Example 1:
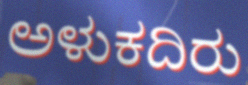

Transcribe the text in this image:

ಅಳುಕದಿರು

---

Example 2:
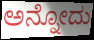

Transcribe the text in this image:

ಅನ್ನೋದು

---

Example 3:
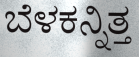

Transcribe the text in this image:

ಬೆಳಕನ್ನಿತ್ತ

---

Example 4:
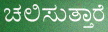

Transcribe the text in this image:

ಚಲಿಸುತ್ತಾರೆ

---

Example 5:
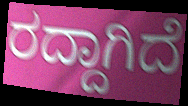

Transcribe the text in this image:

ರದ್ದಾಗಿದೆ